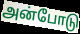
அன்போடு